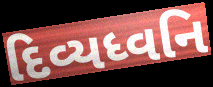
દિવ્યધ્વનિ